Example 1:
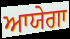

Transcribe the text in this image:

ਆਯੇਗਾ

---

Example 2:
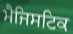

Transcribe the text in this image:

ਮੈਜਿਸਟਿਕ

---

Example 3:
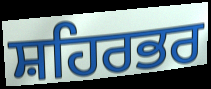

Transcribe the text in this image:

ਸ਼ਹਿਰਭਰ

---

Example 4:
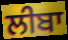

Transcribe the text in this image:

ਲੀਬਾ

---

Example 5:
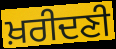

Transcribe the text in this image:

ਖ਼ਰੀਦਣੀ